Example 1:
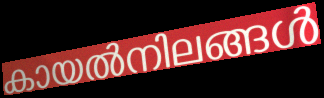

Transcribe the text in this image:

കായൽനിലങ്ങൾ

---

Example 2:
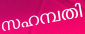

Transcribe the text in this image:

സഹമ്പതി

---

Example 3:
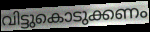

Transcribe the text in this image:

വിട്ടുകൊടുക്കണം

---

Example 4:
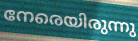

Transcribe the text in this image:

നേരെയിരുന്നു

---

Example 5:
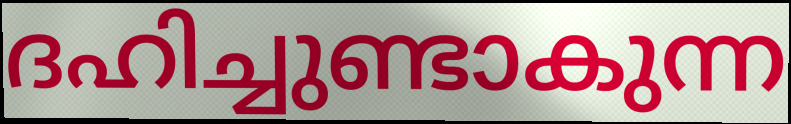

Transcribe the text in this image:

ദഹിച്ചുണ്ടാകുന്ന